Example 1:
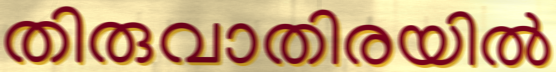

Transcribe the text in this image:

തിരുവാതിരയിൽ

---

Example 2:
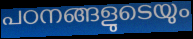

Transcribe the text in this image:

പഠനങ്ങളുടെയും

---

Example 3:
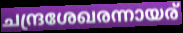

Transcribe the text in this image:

ചന്ദ്രശേഖരന്നായര്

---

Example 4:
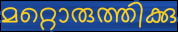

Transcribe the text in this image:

മറ്റൊരുത്തിക്കു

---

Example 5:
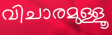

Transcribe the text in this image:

വിചാരമുള്ളൂ